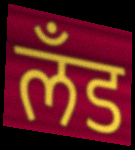
लँड